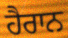
ਹੈਰਾਨ